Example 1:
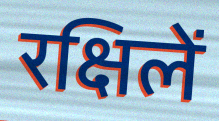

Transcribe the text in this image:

रक्षिलें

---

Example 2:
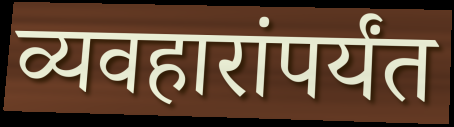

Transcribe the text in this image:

व्यवहारांपर्यंत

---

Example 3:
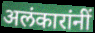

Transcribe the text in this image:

अलंकारांनीं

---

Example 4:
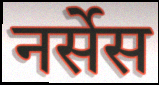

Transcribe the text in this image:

नर्सेस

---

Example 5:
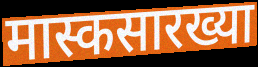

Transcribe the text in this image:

मास्कसारख्या